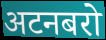
अटनबरो